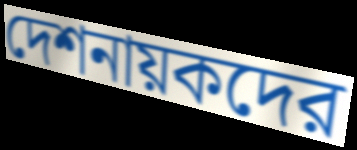
দেশনায়কদের